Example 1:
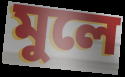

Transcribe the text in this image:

মুলে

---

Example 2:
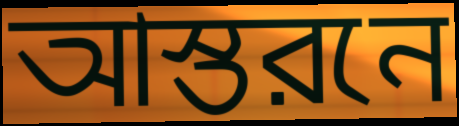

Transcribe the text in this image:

আস্তরনে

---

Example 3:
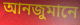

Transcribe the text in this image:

আনজুমানে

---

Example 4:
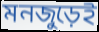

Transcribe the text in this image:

মনজুড়েই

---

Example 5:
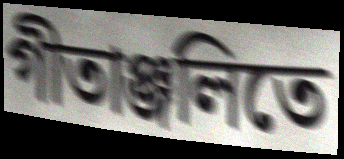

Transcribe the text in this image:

গীতাঞ্জলিতে